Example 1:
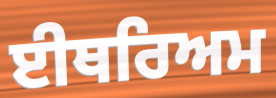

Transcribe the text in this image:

ਈਥਰਿਅਮ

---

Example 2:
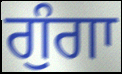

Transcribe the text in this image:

ਗੁੰਗਾ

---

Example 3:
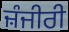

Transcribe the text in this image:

ਜ਼ੰਜੀਰੀ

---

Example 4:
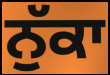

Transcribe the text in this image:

ਨੁੱਕਾ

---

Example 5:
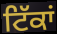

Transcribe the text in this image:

ਟਿੱਕਾਂ